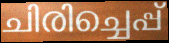
ചിരിച്ചെപ്പ്